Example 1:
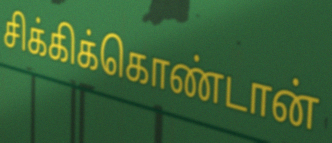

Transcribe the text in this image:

சிக்கிக்கொண்டான்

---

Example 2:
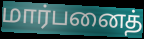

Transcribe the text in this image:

மார்பனைத்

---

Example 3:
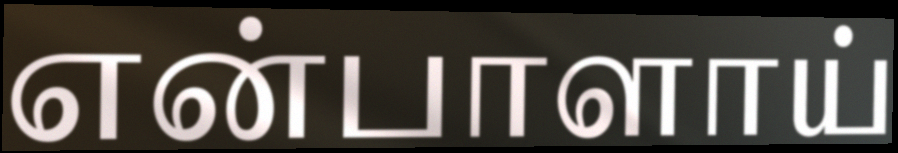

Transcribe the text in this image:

என்பாளாய்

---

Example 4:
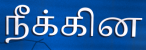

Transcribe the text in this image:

நீக்கின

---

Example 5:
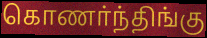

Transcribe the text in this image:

கொணர்ந்திங்கு